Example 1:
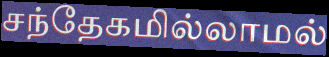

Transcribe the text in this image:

சந்தேகமில்லாமல்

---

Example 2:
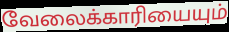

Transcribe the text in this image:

வேலைக்காரியையும்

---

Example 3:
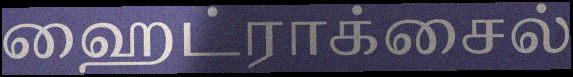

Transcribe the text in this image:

ஹைட்ராக்சைல்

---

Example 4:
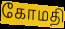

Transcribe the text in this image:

கோமதி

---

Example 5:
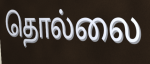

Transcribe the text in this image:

தொல்லை